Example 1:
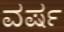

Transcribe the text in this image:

ವರ್ಷ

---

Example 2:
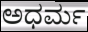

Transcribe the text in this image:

ಅಧರ್ಮ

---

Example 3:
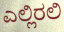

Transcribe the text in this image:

ಎಲ್ಲಿರಲಿ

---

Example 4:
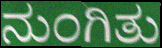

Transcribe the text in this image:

ನುಂಗಿತು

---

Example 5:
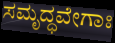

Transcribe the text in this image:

ಸಮೃದ್ಧವೇಗಾಃ